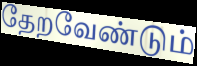
தேறவேண்டும்